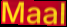
Maal